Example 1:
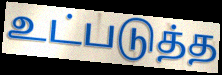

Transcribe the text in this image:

உட்படுத்த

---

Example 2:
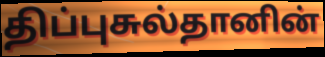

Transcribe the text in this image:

திப்புசுல்தானின்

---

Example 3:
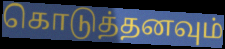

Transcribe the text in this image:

கொடுத்தனவும்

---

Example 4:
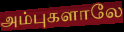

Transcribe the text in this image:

அம்புகளாலே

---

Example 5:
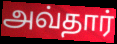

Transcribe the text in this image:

அவ்தார்